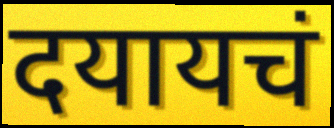
दयायचं